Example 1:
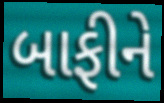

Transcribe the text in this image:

બાફીને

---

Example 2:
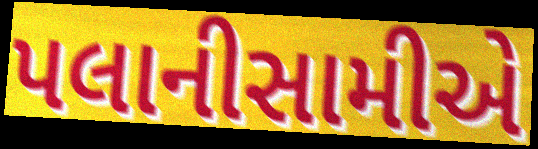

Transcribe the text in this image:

પલાનીસામીએ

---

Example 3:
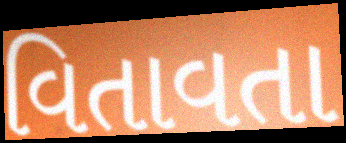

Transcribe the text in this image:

વિતાવતા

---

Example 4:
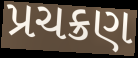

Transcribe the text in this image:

પ્રચક્રણ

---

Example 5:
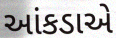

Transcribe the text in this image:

આંકડાએ